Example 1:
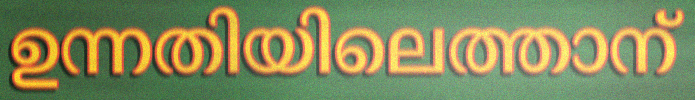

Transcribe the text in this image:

ഉന്നതിയിലെത്താന്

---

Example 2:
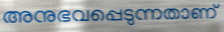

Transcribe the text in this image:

അനുഭവപ്പെടുന്നതാണ്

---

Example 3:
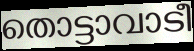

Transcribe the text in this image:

തൊട്ടാവാടീ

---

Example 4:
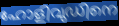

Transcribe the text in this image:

ഹോളിവുഡിനെ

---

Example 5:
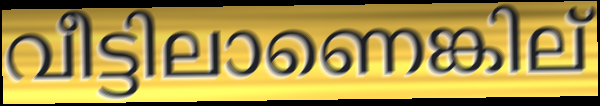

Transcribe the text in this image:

വീട്ടിലാണെങ്കില്